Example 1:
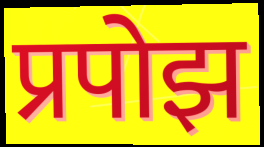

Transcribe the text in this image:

प्रपोझ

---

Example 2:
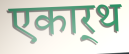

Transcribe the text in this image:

एकार्थ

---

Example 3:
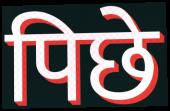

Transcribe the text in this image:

पिछे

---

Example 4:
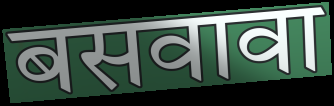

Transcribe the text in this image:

बसवावा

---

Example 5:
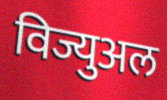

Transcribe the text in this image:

विज्युअल